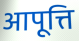
आपूत्ति